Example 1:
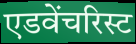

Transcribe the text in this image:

एडवेंचरिस्ट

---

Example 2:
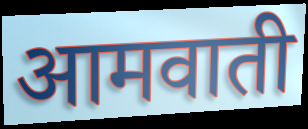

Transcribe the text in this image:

आमवाती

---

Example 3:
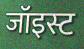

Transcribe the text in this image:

जॉइस्ट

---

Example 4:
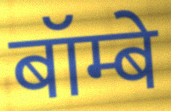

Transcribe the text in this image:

बॉम्‍बे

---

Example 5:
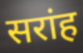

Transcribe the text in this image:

सरांह